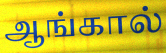
ஆங்கால்